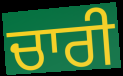
ਚਾਰੀ